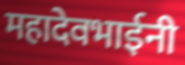
महादेवभाईनी